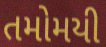
તમોમયી